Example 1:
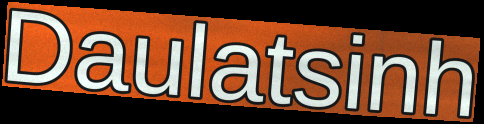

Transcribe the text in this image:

Daulatsinh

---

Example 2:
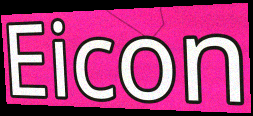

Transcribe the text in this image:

Eicon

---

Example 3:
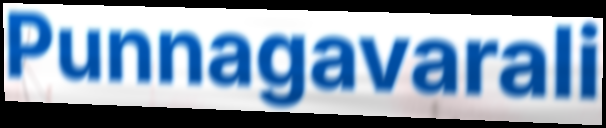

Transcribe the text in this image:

Punnagavarali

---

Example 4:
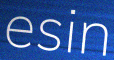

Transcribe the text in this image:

esin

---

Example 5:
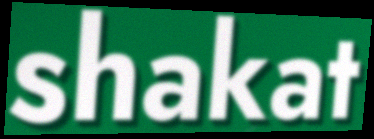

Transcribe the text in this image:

shakat